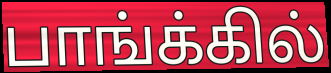
பாங்க்கில்